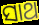
ସାଥ